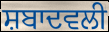
ਸ਼ਬਾਦਵਲੀ